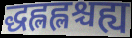
द्धह्लह्लश्चह्य